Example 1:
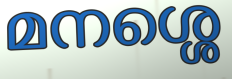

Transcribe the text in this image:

മനശ്ശെ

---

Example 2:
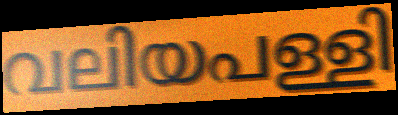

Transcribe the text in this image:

വലിയപള്ളി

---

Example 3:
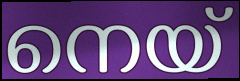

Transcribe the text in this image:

നെയ്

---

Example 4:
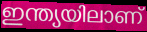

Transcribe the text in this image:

ഇന്ത്യയിലാണ്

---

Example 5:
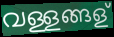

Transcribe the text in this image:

വള്ളങ്ങള്